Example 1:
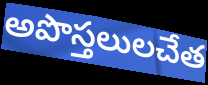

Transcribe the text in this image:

అపొస్తలులచేత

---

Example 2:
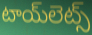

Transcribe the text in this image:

టాయ్‌లెట్స్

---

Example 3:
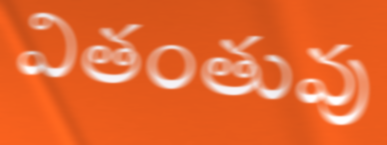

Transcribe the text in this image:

వితంతువు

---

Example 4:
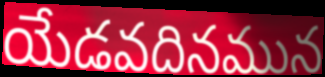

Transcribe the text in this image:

యేడవదినమున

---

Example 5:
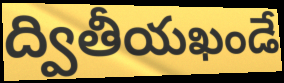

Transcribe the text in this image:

ద్వితీయఖండే